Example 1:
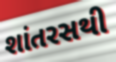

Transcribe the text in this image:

શાંતરસથી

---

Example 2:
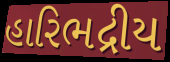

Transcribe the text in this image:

હારિભદ્રીય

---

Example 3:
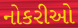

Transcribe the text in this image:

નોકરીઓ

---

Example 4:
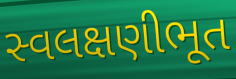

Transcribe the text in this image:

સ્વલક્ષણીભૂત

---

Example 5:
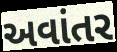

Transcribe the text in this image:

અવાંતર